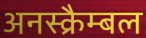
अनस्क्रैम्बल